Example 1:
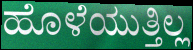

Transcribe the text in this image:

ಹೊಳೆಯುತ್ತಿಲ್ಲ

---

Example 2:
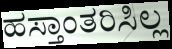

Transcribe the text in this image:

ಹಸ್ತಾಂತರಿಸಿಲ್ಲ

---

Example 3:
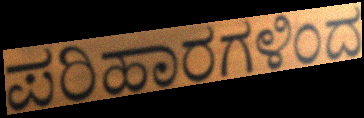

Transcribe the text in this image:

ಪರಿಹಾರಗಳಿಂದ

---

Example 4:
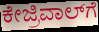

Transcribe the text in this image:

ಕೇಜ್ರಿವಾಲ್‍ಗೆ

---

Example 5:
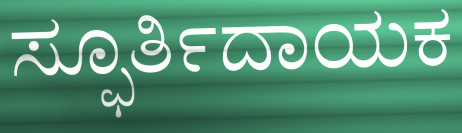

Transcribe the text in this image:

ಸ್ಫೂರ್ತಿದಾಯಕ